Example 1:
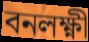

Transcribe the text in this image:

বনলক্ষ্ণী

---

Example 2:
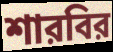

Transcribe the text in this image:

শারবির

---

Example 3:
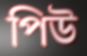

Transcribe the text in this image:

পিউ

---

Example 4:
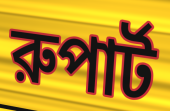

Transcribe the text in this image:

রুপার্ট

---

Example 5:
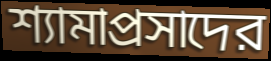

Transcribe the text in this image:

শ্যামাপ্রসাদের